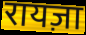
रायज़ा